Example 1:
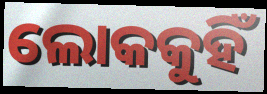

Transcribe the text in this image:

ଲୋକକୁହିଁ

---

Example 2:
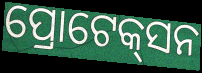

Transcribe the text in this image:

ପ୍ରୋଟେକ୍‌ସନ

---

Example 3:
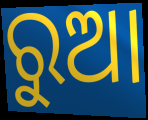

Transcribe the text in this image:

ରୁଆ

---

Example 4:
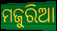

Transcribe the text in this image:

ମଜୁରିଆ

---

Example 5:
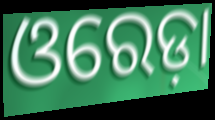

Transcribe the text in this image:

ଓରେଡ଼ା